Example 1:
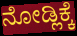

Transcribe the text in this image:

ನೋಡ್ಲಿಕ್ಕೆ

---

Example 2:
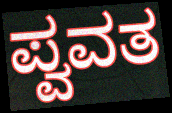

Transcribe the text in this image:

ಪ್ವವತ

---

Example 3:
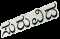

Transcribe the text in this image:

ಸುರುವಿದ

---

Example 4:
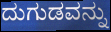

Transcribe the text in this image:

ದುಗುಡವನ್ನು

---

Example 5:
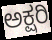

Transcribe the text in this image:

ಅಕ್ಷರಿ